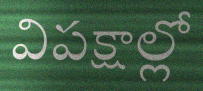
విపక్షాల్లో